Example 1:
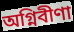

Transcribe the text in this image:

অগ্নিবীণা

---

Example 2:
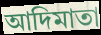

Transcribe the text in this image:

আদিমাতা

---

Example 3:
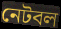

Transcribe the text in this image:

নেটবল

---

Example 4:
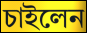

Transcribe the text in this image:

চাইলেন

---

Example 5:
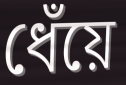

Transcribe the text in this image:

ধেঁয়ে